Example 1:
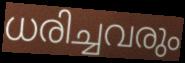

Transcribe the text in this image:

ധരിച്ചവരും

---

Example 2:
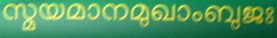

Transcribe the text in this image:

സ്മയമാനമുഖാംബുജഃ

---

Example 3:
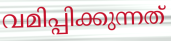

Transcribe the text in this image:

വമിപ്പിക്കുന്നത്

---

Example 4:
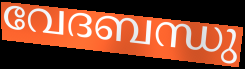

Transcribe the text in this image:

വേദബന്ധു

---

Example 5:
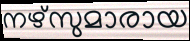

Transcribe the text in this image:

നഴ്സുമാരായ